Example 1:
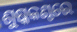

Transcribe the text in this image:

ଶୁଷ୍କକଣ୍ଠରେ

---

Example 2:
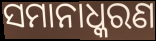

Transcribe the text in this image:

ସମାନାଧ୍କରଣ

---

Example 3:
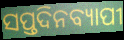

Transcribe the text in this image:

ସପ୍ତଦିନବ୍ୟାପୀ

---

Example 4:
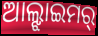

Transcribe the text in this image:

ଆଲ୍ଝାଇମର୍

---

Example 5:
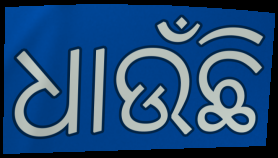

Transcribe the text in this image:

ଧାଉଁଛି